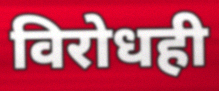
विरोधही